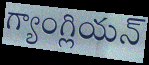
గ్యాంగ్లియన్